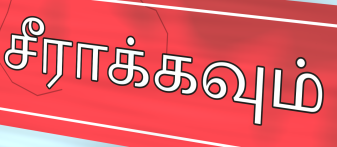
சீராக்கவும்